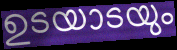
ഉടയാടയും